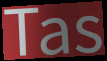
Tas